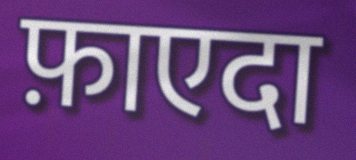
फ़ाएदा